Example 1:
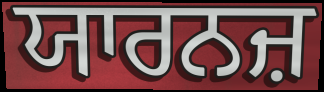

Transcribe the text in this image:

ਯਾਰਨਜ਼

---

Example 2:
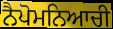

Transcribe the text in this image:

ਨੈਪੋਮਨਿਆਚੀ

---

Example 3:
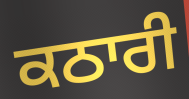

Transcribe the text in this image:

ਕਠਾਰੀ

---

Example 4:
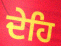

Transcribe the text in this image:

ਦੇਹਿ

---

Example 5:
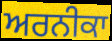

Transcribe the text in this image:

ਅਰਨੀਕਾ